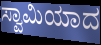
ಸ್ವಾಮಿಯಾದ